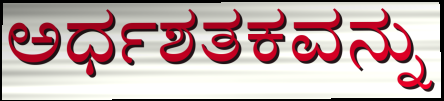
ಅರ್ಧಶತಕವನ್ನು